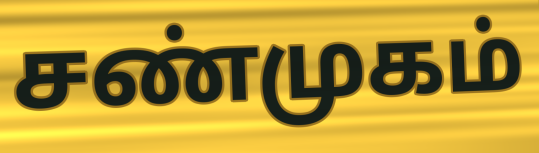
சண்முகம்